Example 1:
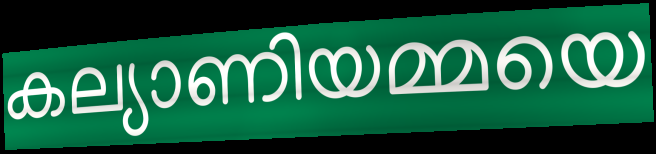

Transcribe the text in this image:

കല്യാണിയമ്മയെ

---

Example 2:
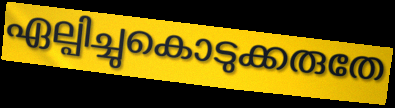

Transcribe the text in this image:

ഏല്പിച്ചുകൊടുക്കരുതേ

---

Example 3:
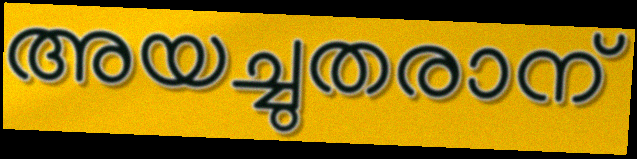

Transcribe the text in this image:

അയച്ചുതരാന്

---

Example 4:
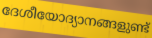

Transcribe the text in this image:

ദേശീയോദ്യാനങ്ങളുണ്ട്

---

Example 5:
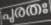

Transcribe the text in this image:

പുരതഃ